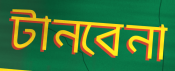
টানবেনা